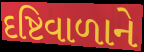
દષ્ટિવાળાને